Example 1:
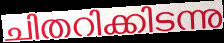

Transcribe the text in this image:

ചിതറിക്കിടന്നു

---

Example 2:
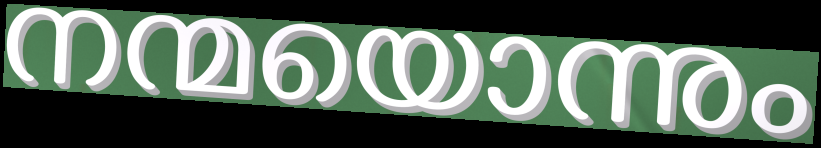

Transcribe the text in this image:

നന്മയൊന്നും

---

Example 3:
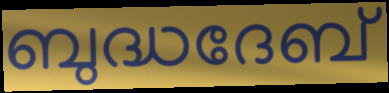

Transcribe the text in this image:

ബുദ്ധദേബ്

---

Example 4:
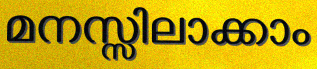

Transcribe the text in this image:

മനസ്സിലാക്കാം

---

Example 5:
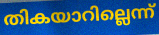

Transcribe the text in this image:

തികയാറില്ലെന്ന്